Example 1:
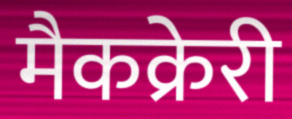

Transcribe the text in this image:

मैकक्रेरी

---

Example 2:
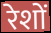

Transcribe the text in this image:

रेशों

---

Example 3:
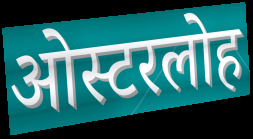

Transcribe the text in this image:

ओस्टरलोह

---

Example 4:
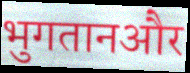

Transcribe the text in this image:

भुगतानऔर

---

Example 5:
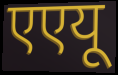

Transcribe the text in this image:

एएयू